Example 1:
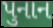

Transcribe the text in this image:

પુનાન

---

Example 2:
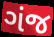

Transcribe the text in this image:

ગંજ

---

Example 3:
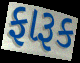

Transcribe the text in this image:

ફારૂક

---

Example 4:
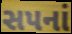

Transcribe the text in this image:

સપનાં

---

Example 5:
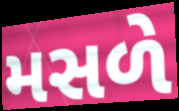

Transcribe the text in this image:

મસળે